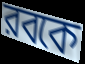
রবকে